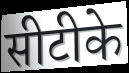
सीटीके